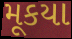
મૂકયા